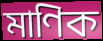
মাণিক